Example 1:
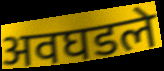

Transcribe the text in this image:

अवघडले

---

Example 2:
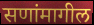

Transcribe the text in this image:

सणांमागील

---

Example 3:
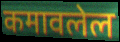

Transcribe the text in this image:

कमावलेल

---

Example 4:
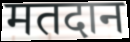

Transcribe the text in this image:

मतदान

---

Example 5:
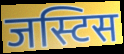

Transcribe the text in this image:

जस्टिस